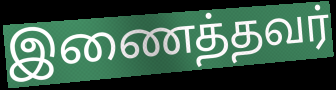
இணைத்தவர்